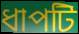
ধাপটি